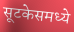
सूटकेसमध्ये